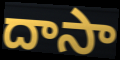
దాసా